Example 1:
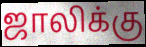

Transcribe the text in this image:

ஜாலிக்கு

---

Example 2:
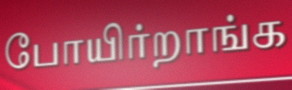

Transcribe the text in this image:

போயிர்றாங்க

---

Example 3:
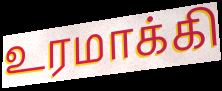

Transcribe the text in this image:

உரமாக்கி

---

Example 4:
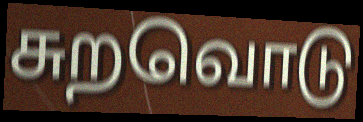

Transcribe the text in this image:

சுறவொடு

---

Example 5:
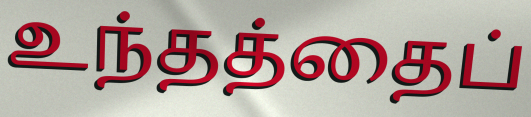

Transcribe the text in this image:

உந்தத்தைப்